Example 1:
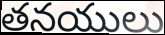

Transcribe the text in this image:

తనయులు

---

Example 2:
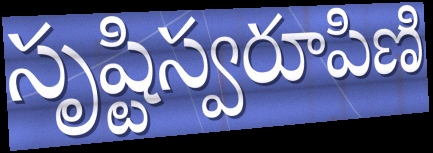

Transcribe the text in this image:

సృష్టిస్వరూపిణి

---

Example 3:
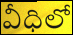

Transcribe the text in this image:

వీధిలో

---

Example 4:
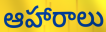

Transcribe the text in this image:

ఆహారాలు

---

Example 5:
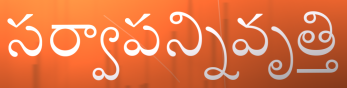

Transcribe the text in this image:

సర్వాపన్నివృత్తి